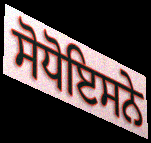
ਸੋਧੋਇਸਨੇ